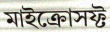
মাইক্রোসফ্ট